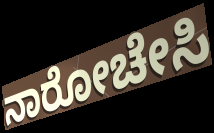
ನಾರೋಚೇಸಿ